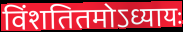
विंशतितमोऽध्यायः